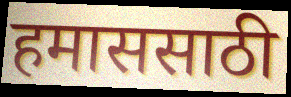
हमाससाठी